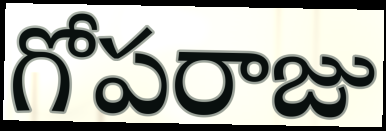
గోపరాజు